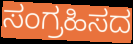
ಸಂಗ್ರಹಿಸದ